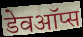
डेवऑप्स